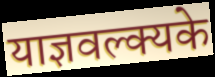
याज्ञवल्क्यके